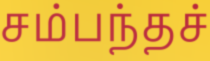
சம்பந்தச்